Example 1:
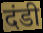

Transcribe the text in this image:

दंडी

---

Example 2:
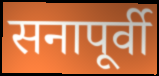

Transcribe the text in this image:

सनापूर्वी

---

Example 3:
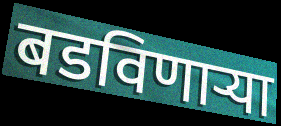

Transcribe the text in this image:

बडविणाऱ्या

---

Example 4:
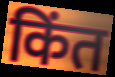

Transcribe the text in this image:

किंत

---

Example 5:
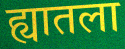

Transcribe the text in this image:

ह्यातला